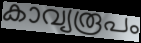
കാവ്യരൂപം